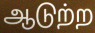
ஆடுற்ற